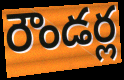
రౌండర్ల